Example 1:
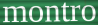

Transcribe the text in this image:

montro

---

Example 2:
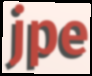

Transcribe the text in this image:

jpe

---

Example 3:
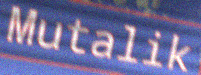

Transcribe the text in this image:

Mutalik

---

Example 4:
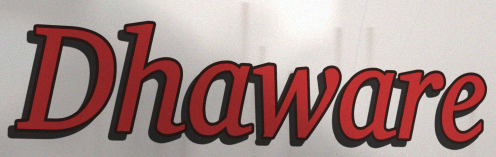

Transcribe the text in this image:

Dhaware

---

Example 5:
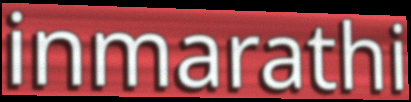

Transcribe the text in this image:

inmarathi